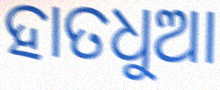
ହାତଧୁଆ